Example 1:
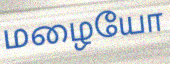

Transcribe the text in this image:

மழையோ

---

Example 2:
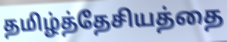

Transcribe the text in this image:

தமிழ்த்தேசியத்தை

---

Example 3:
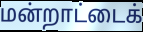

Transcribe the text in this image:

மன்றாட்டைக்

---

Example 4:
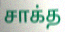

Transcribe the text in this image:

சாக்த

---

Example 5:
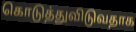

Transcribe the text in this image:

கொடுத்துவிடுவதாக